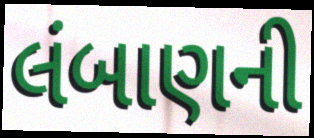
લંબાણની